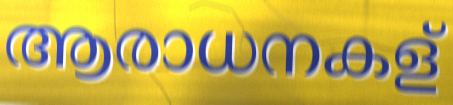
ആരാധനകള്